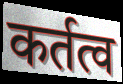
कर्तत्व